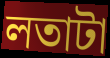
লতাটা